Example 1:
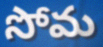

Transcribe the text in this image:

సోమ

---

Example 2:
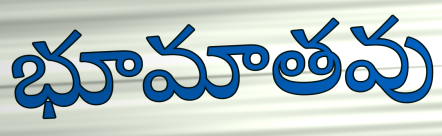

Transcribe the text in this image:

భూమాతవు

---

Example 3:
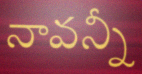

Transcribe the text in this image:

నావన్నీ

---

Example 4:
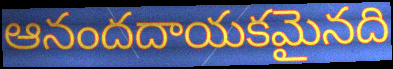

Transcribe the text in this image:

ఆనందదాయకమైనది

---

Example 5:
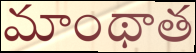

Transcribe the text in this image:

మాంథాత